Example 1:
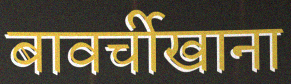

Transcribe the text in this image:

बावर्चीखाना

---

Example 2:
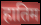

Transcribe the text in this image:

हातिम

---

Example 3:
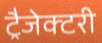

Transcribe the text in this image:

ट्रैजेक्‍टरी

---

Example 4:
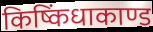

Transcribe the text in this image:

किष्किंधाकाण्ड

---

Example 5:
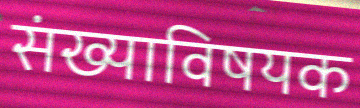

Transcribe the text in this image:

संख्याविषयक